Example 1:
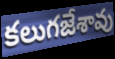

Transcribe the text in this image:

కలుగజేశావు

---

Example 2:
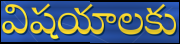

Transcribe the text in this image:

విషయాలకు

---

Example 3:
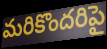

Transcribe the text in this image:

మరికొందరిపై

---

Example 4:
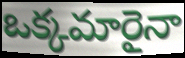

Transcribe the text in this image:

ఒక్కమారైనా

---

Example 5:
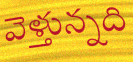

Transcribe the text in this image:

వెళ్తున్నది